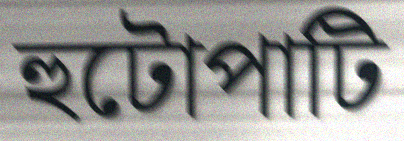
হুটোপাটি